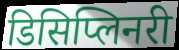
डिसिप्लिनरी